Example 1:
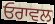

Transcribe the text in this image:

ਓਰਾਵਲ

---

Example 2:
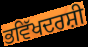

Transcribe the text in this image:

ਭਵਿੱਖਦਰਸ਼ੀ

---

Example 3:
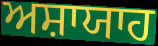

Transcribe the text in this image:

ਅਸ਼ਾਯਾਹ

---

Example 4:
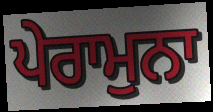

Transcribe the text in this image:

ਪੇਰਾਮੁਨਾ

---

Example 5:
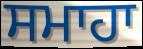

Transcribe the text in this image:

ਸਮਾਹਾ